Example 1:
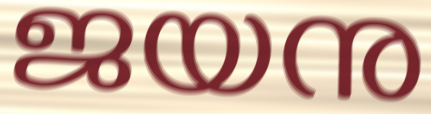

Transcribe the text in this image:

ജയനു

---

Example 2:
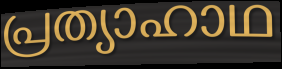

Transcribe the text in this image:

പ്രത്യാഹാഥ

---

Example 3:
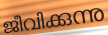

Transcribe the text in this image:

ജീവിക്കുന്നു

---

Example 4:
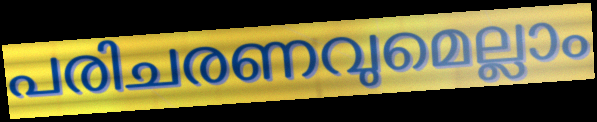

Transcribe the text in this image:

പരിചരണവുമെല്ലാം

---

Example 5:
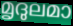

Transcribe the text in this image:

മൃദുലമാ